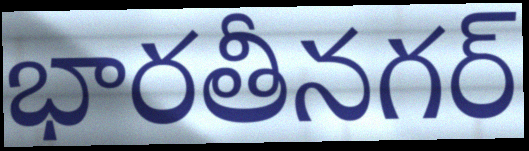
భారతీనగర్